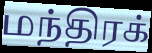
மந்திரக்